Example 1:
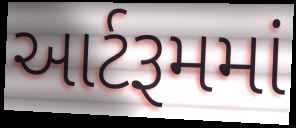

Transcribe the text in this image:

આર્ટરૂમમાં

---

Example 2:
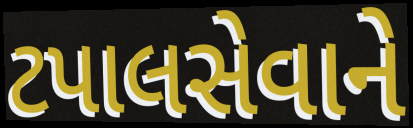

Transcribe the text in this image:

ટપાલસેવાને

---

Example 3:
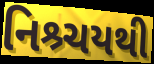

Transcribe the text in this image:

નિશ્ર્ચયથી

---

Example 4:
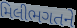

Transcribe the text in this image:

મિલીભગતને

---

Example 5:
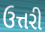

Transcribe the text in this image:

ઉત્તરી